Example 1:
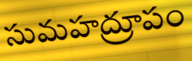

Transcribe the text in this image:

సుమహద్రూపం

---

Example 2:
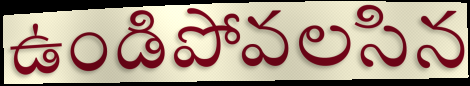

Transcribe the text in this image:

ఉండిపోవలసిన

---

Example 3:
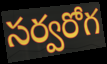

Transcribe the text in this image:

సర్వరోగ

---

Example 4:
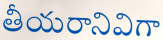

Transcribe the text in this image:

తీయరానివిగా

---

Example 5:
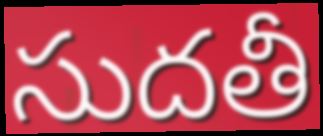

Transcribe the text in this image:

సుదతీ